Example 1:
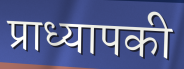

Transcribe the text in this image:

प्राध्यापकी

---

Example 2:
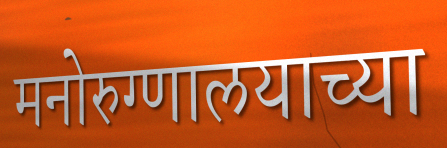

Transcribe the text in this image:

मनोरुग्णालयाच्या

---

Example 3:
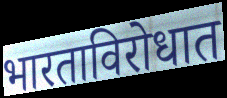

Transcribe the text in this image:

भारताविरोधात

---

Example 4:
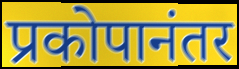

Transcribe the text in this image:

प्रकोपानंतर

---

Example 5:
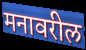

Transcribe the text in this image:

मनावरील